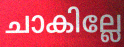
ചാകില്ലേ